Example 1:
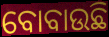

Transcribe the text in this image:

ବୋବାଉଛି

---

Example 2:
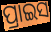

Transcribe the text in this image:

ପ୍ରାଇସ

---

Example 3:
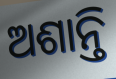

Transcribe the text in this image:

ଅଶାନ୍ତି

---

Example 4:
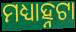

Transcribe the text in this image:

ମଧ୍ୟାହ୍ନଟା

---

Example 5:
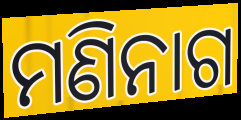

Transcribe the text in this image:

ମଣିନାଗ